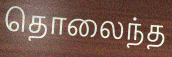
தொலைந்த